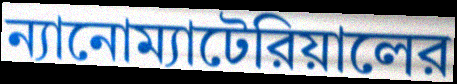
ন্যানোম্যাটেরিয়ালের